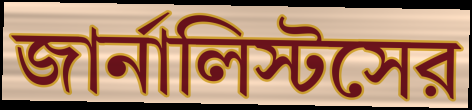
জার্নালিস্টসের